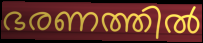
ഭരണത്തിൽ